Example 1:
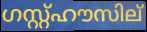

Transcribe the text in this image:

ഗസ്റ്റ്ഹൗസില്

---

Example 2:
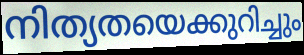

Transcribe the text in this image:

നിത്യതയെക്കുറിച്ചും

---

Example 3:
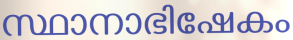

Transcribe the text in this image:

സ്ഥാനാഭിഷേകം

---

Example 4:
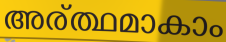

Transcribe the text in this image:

അര്ത്ഥമാകാം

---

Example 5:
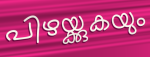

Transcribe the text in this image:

പിഴയ്ക്കുകയും